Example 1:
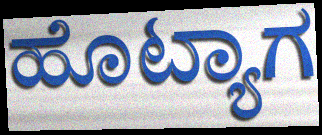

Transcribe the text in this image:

ಹೊಟ್ಯಾಗ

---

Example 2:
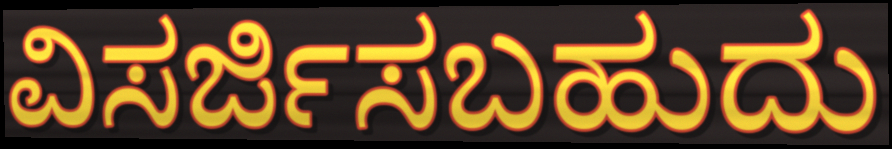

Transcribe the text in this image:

ವಿಸರ್ಜಿಸಬಹುದು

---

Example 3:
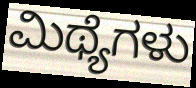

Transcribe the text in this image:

ಮಿಥ್ಯೆಗಳು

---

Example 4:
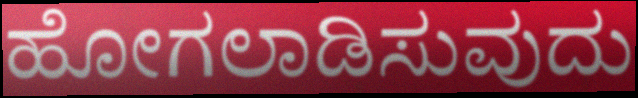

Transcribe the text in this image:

ಹೋಗಲಾಡಿಸುವುದು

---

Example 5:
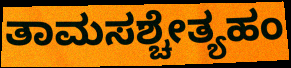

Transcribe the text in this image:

ತಾಮಸಶ್ಚೇತ್ಯಹಂ